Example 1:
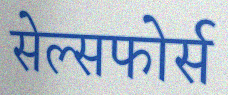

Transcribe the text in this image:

सेल्सफोर्स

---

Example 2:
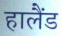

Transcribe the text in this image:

हालैंड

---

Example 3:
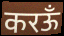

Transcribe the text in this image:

करऊँ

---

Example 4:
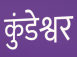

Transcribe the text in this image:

कुंडेश्वर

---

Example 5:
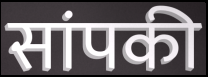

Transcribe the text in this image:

सांपकी